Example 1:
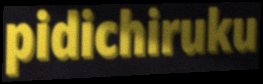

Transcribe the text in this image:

pidichiruku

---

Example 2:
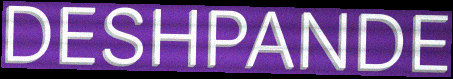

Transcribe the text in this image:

DESHPANDE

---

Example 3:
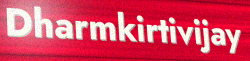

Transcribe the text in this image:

Dharmkirtivijay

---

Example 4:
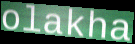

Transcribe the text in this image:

olakha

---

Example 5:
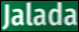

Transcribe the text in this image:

Jalada